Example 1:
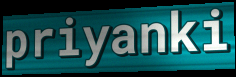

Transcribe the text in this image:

priyanki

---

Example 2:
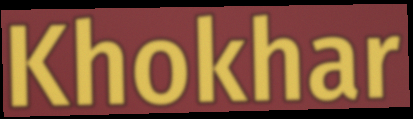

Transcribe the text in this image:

Khokhar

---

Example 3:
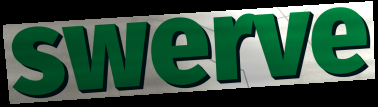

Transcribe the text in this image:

swerve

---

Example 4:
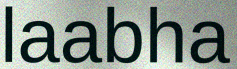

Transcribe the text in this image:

laabha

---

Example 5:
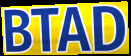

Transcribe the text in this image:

BTAD